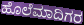
ಹೊಲೆಮಾದಿಗರ